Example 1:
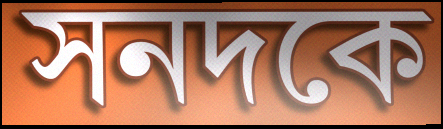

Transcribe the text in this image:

সনদকে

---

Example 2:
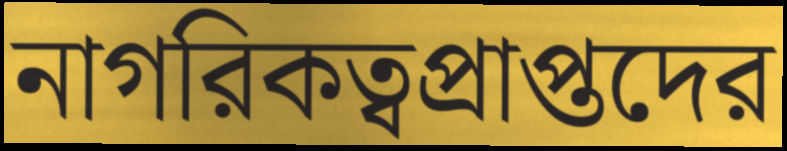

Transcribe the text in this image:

নাগরিকত্বপ্রাপ্তদের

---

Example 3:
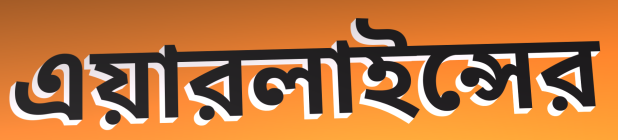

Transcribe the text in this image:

এয়ারলাইন্সের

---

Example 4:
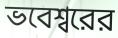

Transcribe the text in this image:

ভবেশ্বরের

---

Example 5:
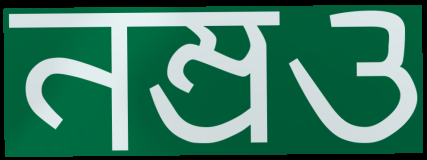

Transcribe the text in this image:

নম্রও